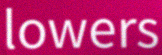
lowers